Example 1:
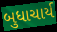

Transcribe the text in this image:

બુધાચાર્ય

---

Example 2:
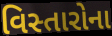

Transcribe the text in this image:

વિસ્તારોના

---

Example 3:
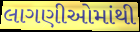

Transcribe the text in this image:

લાગણીઓમાંથી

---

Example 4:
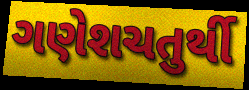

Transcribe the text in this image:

ગણેશચતુર્થી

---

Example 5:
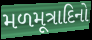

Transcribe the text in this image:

મળમૂત્રાદિનો